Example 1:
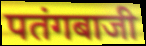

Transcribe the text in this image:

पतंगबाजी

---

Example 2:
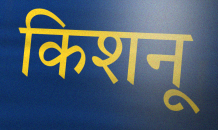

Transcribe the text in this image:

किशनू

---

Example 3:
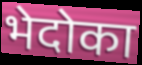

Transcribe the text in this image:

भेदोका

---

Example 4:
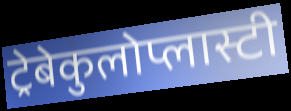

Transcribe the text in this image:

ट्रेबेकुलोप्लास्टी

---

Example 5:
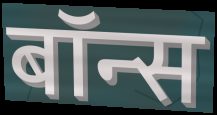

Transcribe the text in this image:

बॉन्स